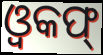
ଓ୍ୱକଫ୍